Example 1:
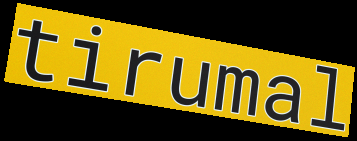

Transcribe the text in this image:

tirumal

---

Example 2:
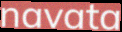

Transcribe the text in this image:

navata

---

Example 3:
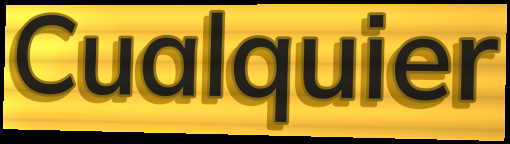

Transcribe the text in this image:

Cualquier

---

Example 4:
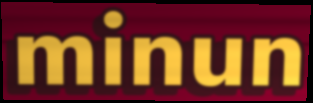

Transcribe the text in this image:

minun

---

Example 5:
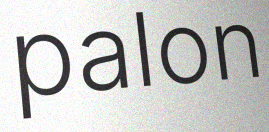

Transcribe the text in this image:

palon